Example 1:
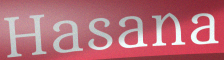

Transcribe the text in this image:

Hasana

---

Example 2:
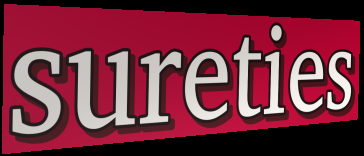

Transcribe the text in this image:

sureties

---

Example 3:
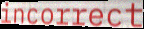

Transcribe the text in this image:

incorrect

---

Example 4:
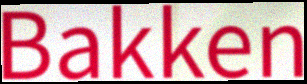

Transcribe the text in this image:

Bakken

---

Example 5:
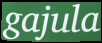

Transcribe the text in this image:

gajula